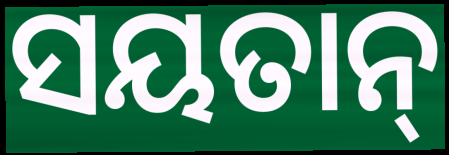
ସୟତାନ୍